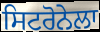
ਸਿਟਰੋਨੇਲਾ